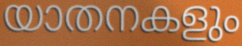
യാതനകളും